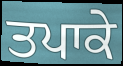
ਤਪਾਕੇ